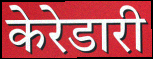
केरेडारी